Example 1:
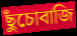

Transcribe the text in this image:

ছুঁচোবাজি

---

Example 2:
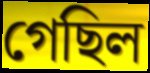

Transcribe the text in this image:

গেছিল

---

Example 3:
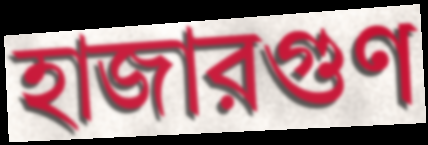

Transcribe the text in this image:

হাজারগুণ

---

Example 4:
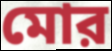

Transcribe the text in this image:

মোর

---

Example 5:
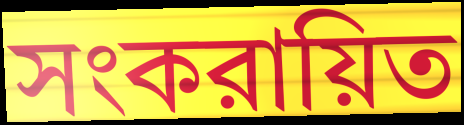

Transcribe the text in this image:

সংকরায়িত